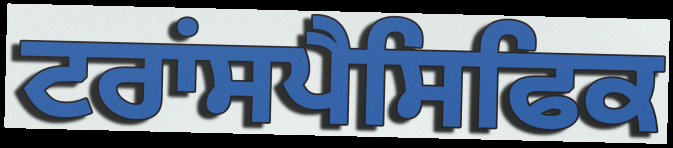
ਟਰਾਂਸਪੈਸਿਫਿਕ